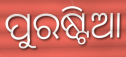
ପୁରଷ୍ଟିଆ